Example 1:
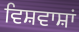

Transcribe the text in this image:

ਵਿਸ਼ਵਾਸ਼ਾਂ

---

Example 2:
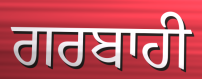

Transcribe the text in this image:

ਗਰਬਾਹੀ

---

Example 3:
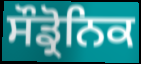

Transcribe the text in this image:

ਸੌਡ੍ਰੋਨਿਕ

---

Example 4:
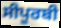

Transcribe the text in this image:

ਸੀਪੂਰਬੀ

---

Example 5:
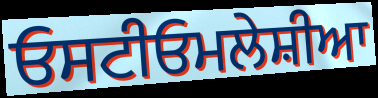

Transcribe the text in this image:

ਓਸਟੀਓਮਲੇਸ਼ੀਆ